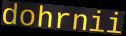
dohrnii